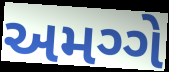
અમગ્ગે